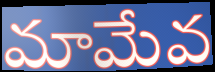
మామేవ